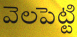
వెలపెట్టి